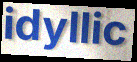
idyllic